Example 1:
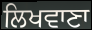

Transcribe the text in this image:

ਲਿਖਵਾਣਾ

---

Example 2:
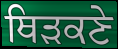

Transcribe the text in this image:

ਥਿੜਕਣੇ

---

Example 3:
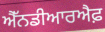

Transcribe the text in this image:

ਐੱਨਡੀਆਰਐਫ਼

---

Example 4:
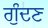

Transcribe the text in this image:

ਗੁੰਦਣ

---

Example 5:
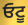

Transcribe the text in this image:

ਓਟੂ